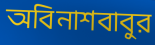
অবিনাশবাবুর